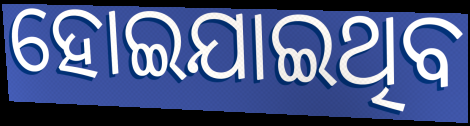
ହୋଇଯାଇଥିବ